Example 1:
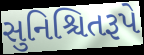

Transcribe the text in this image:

સુનિશ્ચિતરૂપે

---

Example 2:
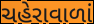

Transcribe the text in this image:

ચહેરાવાળાં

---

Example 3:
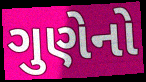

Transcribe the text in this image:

ગુણેનો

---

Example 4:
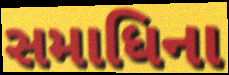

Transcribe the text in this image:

સમાધિના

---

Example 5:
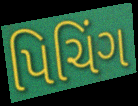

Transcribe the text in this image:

પિચિંગ